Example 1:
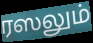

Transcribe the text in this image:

ரஸலும்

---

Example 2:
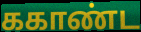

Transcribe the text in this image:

ககாண்ட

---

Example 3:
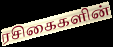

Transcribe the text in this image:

ரசிகைகளின்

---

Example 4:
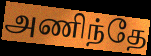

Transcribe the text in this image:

அணிந்தே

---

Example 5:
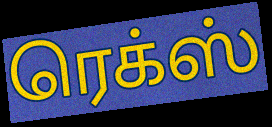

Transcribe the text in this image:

ரெக்ஸ்